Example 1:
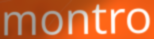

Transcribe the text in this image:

montro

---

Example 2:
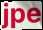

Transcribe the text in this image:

jpe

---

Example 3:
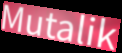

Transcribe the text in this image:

Mutalik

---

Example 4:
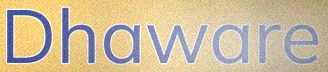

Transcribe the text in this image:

Dhaware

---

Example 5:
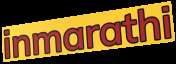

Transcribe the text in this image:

inmarathi